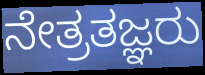
ನೇತ್ರತಜ್ಞರು